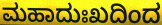
ಮಹಾದುಃಖದಿಂದ